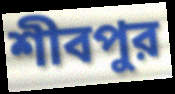
শীবপুর